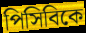
পিসিবিকে